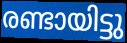
രണ്ടായിട്ടു